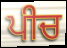
ਪੀਚ